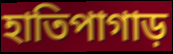
হাতিপাগাড়